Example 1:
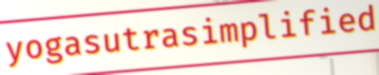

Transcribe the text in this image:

yogasutrasimplified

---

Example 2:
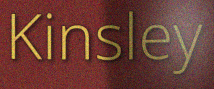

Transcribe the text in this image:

Kinsley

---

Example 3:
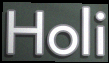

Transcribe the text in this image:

Holi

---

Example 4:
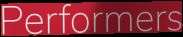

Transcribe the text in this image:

Performers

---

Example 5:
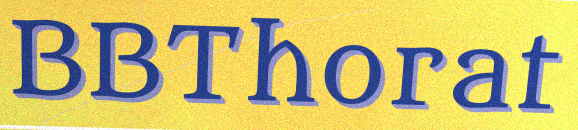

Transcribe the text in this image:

BBThorat